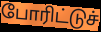
போரிட்டுச்